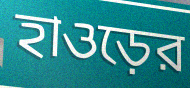
হাওড়ের